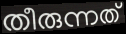
തീരുന്നത്